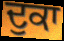
ਦੁਕਾ